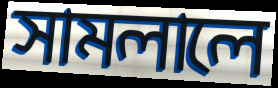
সামলালে